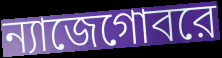
ন্যাজেগোবরে